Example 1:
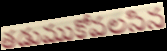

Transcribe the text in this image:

తడుముకోవలసిన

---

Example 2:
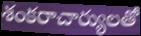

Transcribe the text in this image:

శంకరాచార్యులతో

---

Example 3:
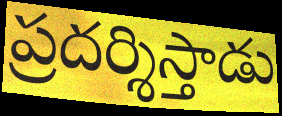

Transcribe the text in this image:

ప్రదర్శిస్తాడు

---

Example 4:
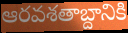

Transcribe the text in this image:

ఆరవశతాబ్దానికి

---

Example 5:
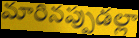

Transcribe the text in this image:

మారినప్పుడల్లా